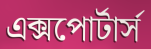
এক্সপোর্টার্স